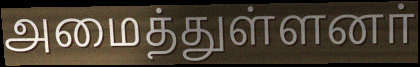
அமைத்துள்ளனர்